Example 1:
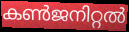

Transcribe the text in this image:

കൺജനിറ്റൽ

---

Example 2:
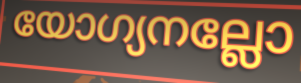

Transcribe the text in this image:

യോഗ്യനല്ലോ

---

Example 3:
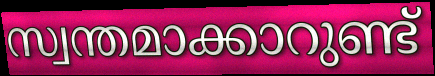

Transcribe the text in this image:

സ്വന്തമാക്കാറുണ്ട്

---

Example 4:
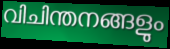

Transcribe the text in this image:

വിചിന്തനങ്ങളും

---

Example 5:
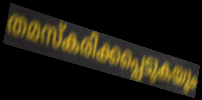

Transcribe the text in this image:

തമസ്കരിക്കപ്പെടുകയും